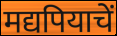
मद्यपियाचें